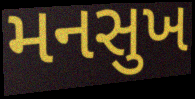
મનસુખ